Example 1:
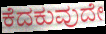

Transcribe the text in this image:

ಕೆದಕುವುದೇ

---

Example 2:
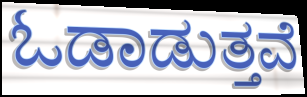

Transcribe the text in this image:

ಓಡಾಡುತ್ತವೆ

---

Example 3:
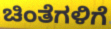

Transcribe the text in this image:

ಚಿಂತೆಗಳಿಗೆ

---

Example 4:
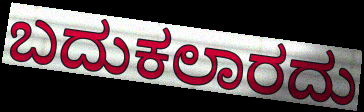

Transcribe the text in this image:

ಬದುಕಲಾರದು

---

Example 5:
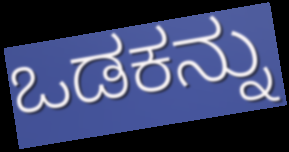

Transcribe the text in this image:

ಒಡಕನ್ನು